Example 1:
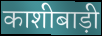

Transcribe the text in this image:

काशीबाड़ी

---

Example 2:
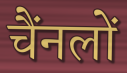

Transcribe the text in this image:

चैंनलों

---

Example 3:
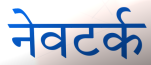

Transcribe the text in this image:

नेवटर्क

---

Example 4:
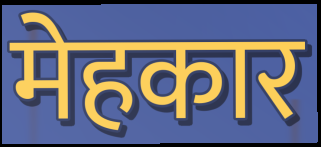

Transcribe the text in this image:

मेहकार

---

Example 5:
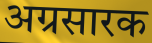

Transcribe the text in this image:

अग्रसारक